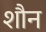
शौन